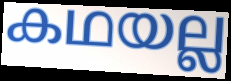
കഥയല്ല